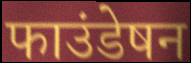
फाउंडेषन